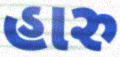
હારુ